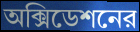
অক্সিডেশনের